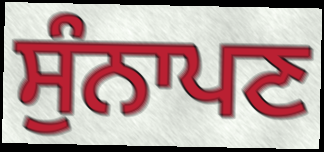
ਸੁੰਨਾਪਣ